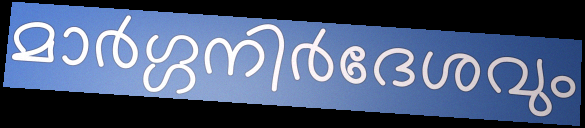
മാർഗ്ഗനിർദേശവും